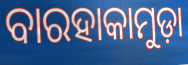
ବାରହାକାମୁଡ଼ା